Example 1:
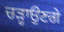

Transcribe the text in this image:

ਚੜ੍ਹਾਉਣਗੇ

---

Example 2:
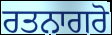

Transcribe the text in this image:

ਰਤਨਾਗਰੋ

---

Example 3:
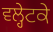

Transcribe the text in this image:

ਵਲ੍ਹੇਟਕੇ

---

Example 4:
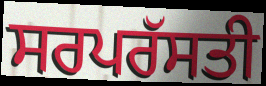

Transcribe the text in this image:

ਸਰਪਰੱਸਤੀ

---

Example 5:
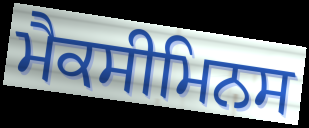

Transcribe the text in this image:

ਮੈਕਸੀਮਿਨਸ